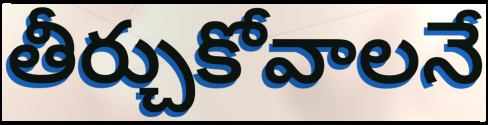
తీర్చుకోవాలనే